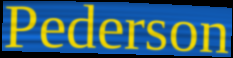
Pederson